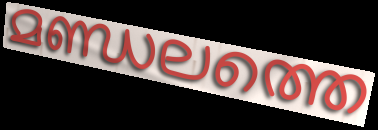
മണ്ഡലത്തെ